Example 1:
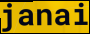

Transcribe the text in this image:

janai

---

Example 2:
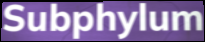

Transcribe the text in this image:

Subphylum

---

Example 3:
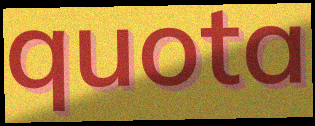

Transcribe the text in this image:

quota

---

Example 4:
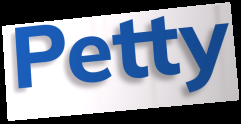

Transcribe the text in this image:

Petty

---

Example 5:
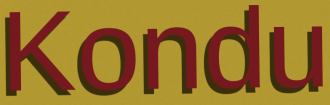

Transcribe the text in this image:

Kondu